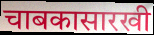
चाबकासारखी